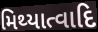
મિથ્યાત્વાદિ